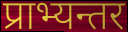
प्राभ्यन्तर